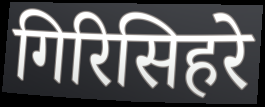
गिरिसिहरे